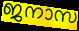
ജനാസ